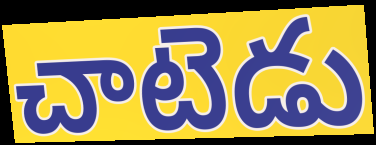
చాటెడు